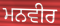
ਮਨਵੀਰ